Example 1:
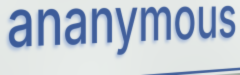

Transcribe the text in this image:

ananymous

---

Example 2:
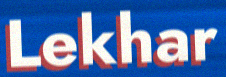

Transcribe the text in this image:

Lekhar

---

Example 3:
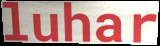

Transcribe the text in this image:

luhar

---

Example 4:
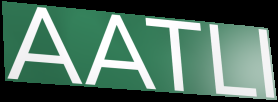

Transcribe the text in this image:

AATLI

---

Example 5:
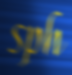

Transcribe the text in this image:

sph